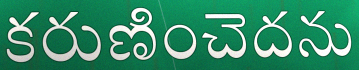
కరుణించెదను